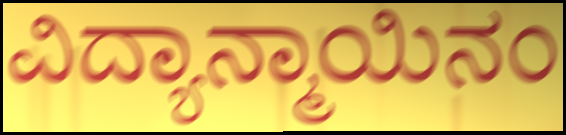
ವಿದ್ಯಾನ್ಮಾಯಿನಂ